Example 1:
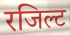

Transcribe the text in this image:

रजिल्ट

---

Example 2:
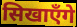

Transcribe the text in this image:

सिखाएँगे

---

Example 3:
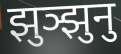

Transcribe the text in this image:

झुञ्झुनु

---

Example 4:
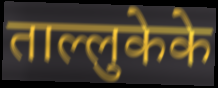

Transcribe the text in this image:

ताल्लुकेके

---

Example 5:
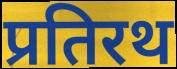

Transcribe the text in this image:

प्रतिरथ